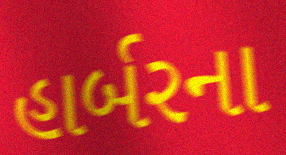
હાર્બરના